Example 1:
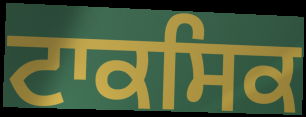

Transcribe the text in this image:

ਟਾਕਸਿਕ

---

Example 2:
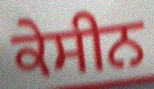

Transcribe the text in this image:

ਕੇਸੀਨ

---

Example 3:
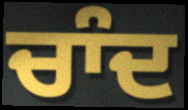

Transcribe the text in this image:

ਚਾੰਦ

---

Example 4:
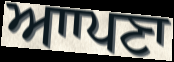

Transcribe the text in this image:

ਆਾਪਣਾ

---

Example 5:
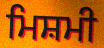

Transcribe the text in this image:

ਮਿਸ਼ਮੀ